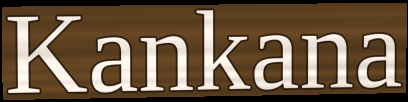
Kankana